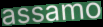
assamo